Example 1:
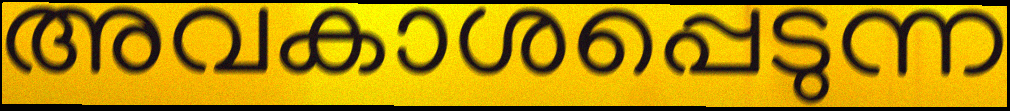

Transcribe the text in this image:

അവകാശപ്പെടുന്ന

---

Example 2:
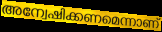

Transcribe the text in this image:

അന്വേഷിക്കണമെന്നാണ്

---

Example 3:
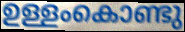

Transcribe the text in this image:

ഉള്ളംകൊണ്ടു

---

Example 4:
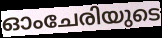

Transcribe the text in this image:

ഓംചേരിയുടെ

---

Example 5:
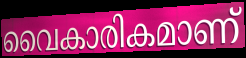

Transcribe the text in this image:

വൈകാരികമാണ്